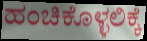
ಹಂಚಿಕೊಳ್ಳಲಿಕ್ಕೆ